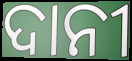
ଦାନୀ